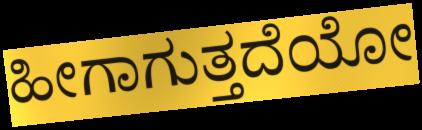
ಹೀಗಾಗುತ್ತದೆಯೋ